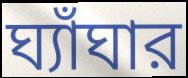
ঘ্যাঁঘার